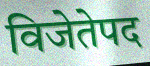
विजेतेपद